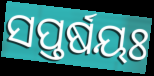
ସପ୍ତର୍ଷୟଃ